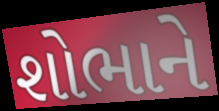
શોભાને